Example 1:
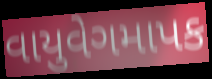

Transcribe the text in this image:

વાયુવેગમાપક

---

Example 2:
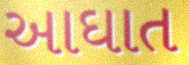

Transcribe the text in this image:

આઘાત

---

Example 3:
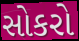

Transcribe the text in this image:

સોકરો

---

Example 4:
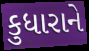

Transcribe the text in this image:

કુધારાને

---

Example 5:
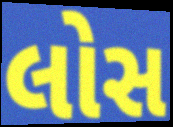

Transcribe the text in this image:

લોસ